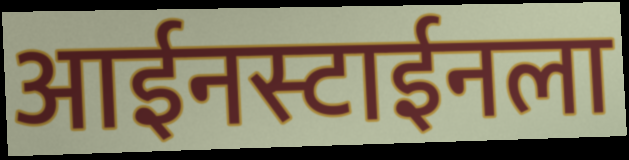
आईनस्टाईनला